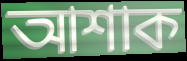
আশাক